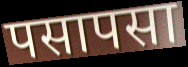
पसापसा